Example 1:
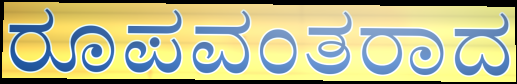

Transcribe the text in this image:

ರೂಪವಂತರಾದ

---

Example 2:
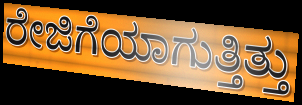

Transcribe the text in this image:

ರೇಜಿಗೆಯಾಗುತ್ತಿತ್ತು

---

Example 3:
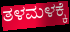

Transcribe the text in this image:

ತಳಮಳಕ್ಕೆ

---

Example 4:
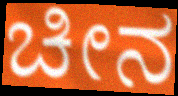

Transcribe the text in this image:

ಚೀನ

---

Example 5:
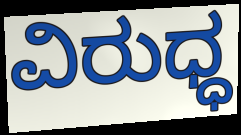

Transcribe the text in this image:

ವಿರುಧ್ಧ